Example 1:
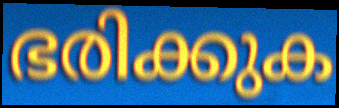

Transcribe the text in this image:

ഭരിക്കുക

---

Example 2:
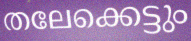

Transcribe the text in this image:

തലേക്കെട്ടും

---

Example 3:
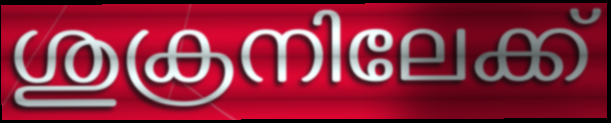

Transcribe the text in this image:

ശുക്രനിലേക്ക്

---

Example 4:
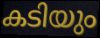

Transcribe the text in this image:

കടിയും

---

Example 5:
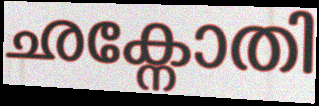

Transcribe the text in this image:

ഛക്നോതി